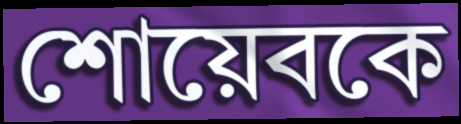
শোয়েবকে